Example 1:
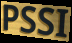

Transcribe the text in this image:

PSSI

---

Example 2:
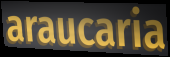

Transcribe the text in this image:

araucaria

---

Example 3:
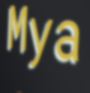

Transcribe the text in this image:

Mya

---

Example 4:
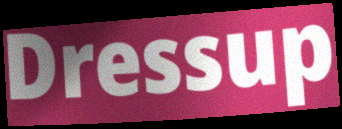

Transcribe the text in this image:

Dressup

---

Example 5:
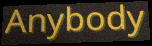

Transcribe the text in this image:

Anybody